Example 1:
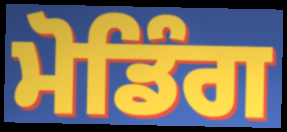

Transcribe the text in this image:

ਮੋਡਿੰਗ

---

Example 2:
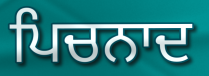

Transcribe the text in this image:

ਪਿਚਨਾਦ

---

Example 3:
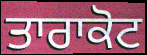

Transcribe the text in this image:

ਤਾਰਾਕੋਟ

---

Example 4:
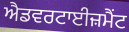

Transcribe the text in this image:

ਐਡਵਰਟਾਈਜ਼ਮੈਂਟ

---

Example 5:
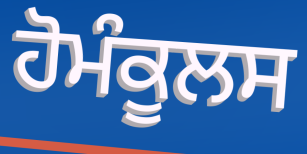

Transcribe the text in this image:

ਹੋਮੰਕੂਲਸ